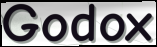
Godox